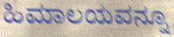
ಹಿಮಾಲಯವನ್ನೂ